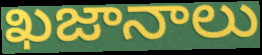
ఖజానాలు